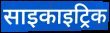
साइकाइट्रिक